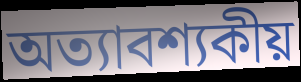
অত্যাবশ্যকীয়